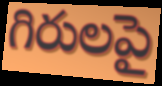
గిరులపై